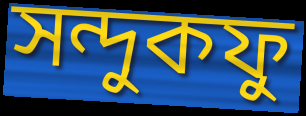
সন্দুকফু